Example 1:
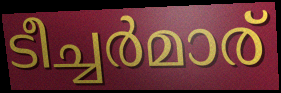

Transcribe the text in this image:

ടീച്ചർമാര്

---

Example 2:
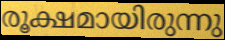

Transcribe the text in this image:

രൂക്ഷമായിരുന്നു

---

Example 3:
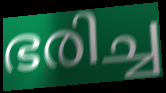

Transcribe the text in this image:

ഭരിച്ച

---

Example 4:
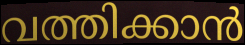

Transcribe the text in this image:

വത്തിക്കാൻ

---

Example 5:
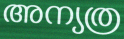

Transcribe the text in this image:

അന്യത്ര